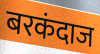
बरकंदाज